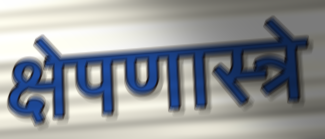
क्षेपणास्त्रे